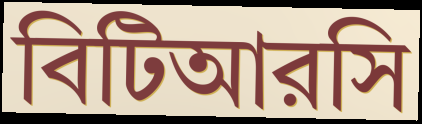
বিটিআরসি